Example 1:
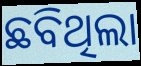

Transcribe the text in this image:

ଛବିଥିଲା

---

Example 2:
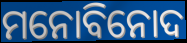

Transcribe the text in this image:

ମନୋବିନୋଦ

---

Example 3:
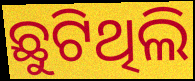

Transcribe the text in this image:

ଛୁଟିଥିଲି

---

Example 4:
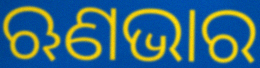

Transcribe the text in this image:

ଋଣଭାର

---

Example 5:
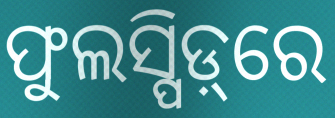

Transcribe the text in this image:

ଫୁଲସ୍ପିଡ଼୍‌ରେ